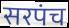
सरपंच